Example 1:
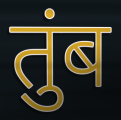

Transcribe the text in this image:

तुंब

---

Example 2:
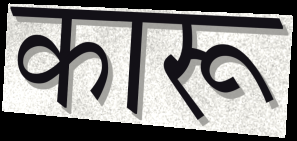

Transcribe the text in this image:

कारू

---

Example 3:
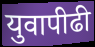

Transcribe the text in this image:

युवापीढी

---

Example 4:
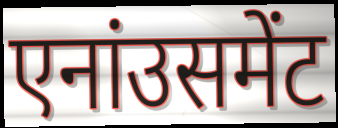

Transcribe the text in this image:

एनांउसमेंट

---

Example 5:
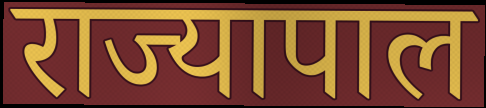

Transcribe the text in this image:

राज्यापाल